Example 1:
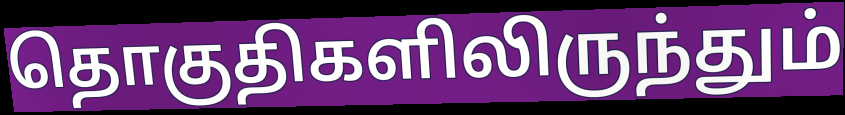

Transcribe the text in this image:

தொகுதிகளிலிருந்தும்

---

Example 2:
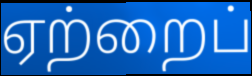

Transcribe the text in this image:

ஏற்றைப்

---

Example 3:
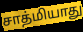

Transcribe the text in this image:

சாத்மியாது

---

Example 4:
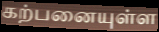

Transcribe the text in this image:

கற்பனையுள்ள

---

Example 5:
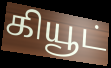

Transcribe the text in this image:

கியூட்